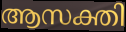
ആസക്തി